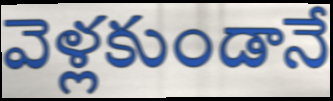
వెళ్లకుండానే